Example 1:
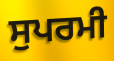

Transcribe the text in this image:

ਸੁਪਰਮੀ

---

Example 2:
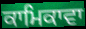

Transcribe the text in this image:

ਕਾਮਿਕਾਵਾ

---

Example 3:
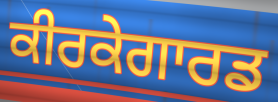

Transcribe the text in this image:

ਕੀਰਕੇਗਾਰਡ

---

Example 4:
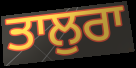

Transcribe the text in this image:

ਤਾਲੁਰਾ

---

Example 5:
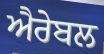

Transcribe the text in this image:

ਐਰੇਬਲ